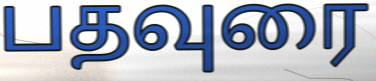
பதவுரை